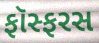
ફૉસ્ફરસ